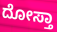
ದೋಸ್ತಾ